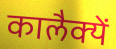
कालैक्यें